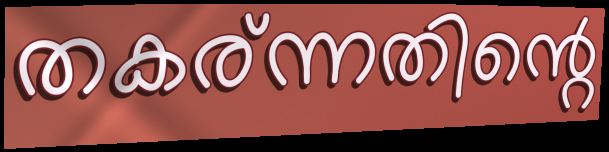
തകര്ന്നതിന്റെ